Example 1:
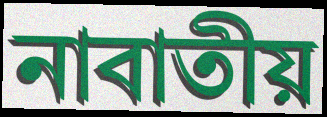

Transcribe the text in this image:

নাবাতীয়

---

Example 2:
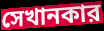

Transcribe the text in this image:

সেখানকার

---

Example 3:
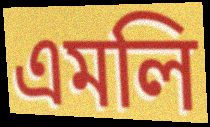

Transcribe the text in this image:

এমলি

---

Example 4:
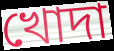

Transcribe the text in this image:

খোদা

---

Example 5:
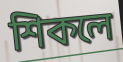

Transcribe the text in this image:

শিকলে